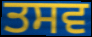
ਤਸਵ